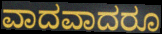
ವಾದವಾದರೂ